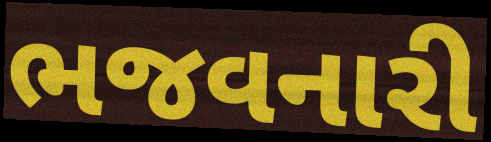
ભજવનારી